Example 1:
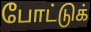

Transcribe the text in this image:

போட்டுக்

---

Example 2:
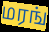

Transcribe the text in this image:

மரங்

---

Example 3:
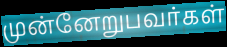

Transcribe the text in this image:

முன்னேறுபவர்கள்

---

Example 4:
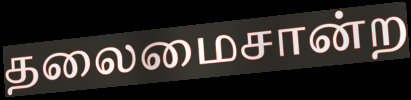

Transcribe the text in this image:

தலைமைசான்ற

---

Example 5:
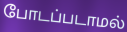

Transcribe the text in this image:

போடப்படாமல்